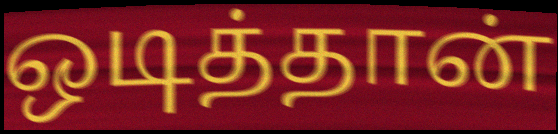
ஒடித்தான்